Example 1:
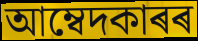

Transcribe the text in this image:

আম্বেদকাৰৰ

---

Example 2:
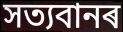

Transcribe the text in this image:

সত্যবানৰ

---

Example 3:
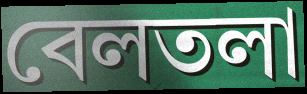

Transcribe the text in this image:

বেলতলা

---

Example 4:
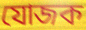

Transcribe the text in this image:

যোজক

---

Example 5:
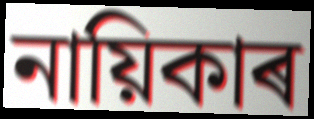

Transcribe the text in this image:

নায়িকাৰ